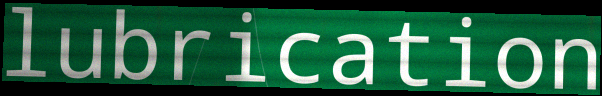
lubrication